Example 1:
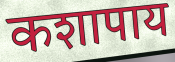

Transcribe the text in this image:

कशापाय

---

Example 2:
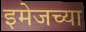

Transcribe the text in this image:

इमेजच्या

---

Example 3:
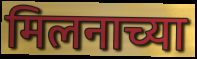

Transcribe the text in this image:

मिलनाच्या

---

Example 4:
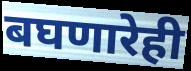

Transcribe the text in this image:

बघणारेही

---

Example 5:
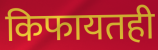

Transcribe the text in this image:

किफायतही